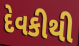
દેવકીથી